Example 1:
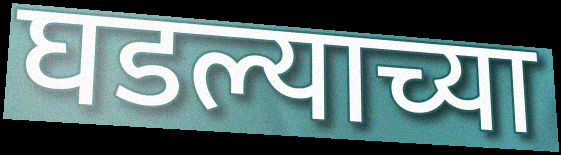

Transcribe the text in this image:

घडल्याच्या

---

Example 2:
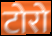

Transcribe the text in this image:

टोरो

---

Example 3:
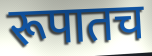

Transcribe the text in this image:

रूपातच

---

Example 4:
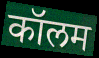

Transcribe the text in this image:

कॉलम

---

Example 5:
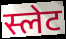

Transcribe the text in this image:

स्लेट